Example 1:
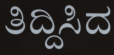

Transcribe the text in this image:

ತಿದ್ದಿಸಿದ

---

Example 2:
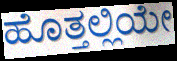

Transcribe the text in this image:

ಹೊತ್ತಲ್ಲಿಯೇ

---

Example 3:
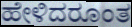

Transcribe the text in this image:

ಹೇಳಿದರೂಂತ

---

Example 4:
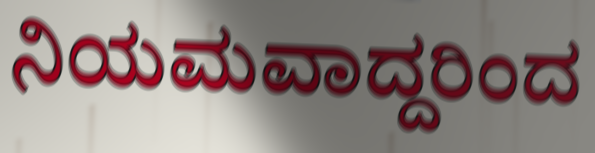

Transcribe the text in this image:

ನಿಯಮವಾದ್ದರಿಂದ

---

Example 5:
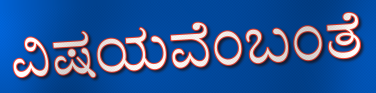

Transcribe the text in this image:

ವಿಷಯವೆಂಬಂತೆ